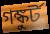
গঙ্কুর্ট